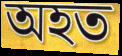
অহত